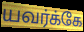
யவர்க்கே